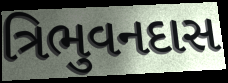
ત્રિભુવનદાસ